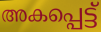
അകപ്പെട്ട്